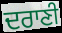
ਦਰਾਣੀ